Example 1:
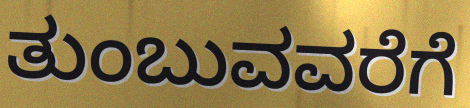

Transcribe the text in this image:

ತುಂಬುವವರೆಗೆ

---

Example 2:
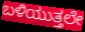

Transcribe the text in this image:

ಬಳಿಯುತ್ತಲೇ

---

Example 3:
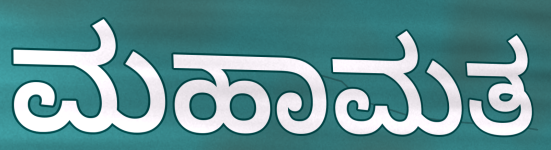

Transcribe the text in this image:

ಮಹಾಮತ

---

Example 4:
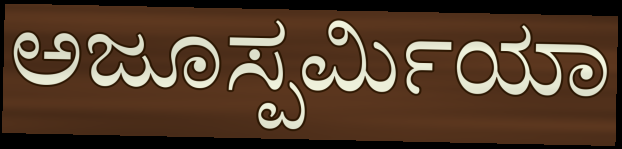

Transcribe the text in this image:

ಅಜೂಸ್ಪರ್ಮಿಯಾ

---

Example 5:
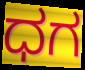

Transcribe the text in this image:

ಧಗ